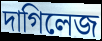
দাগিলেজ